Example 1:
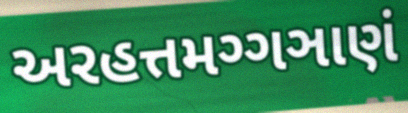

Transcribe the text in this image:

અરહત્તમગ્ગઞાણં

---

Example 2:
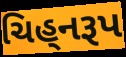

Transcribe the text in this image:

ચિહ્‌નરૂપ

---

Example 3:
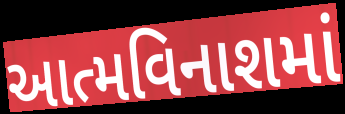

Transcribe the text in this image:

આત્મવિનાશમાં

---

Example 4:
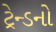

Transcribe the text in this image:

ટ્રેન્ડનો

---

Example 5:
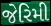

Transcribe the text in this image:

જેરિમી